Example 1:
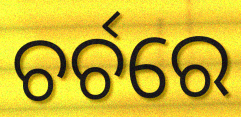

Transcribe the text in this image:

ଚର୍ଚରେ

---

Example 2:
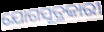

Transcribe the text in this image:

ଯୋଗସୂତ୍ରକାରୀ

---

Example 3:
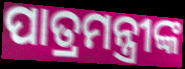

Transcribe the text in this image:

ପାତ୍ରମନ୍ତ୍ରୀଙ୍କ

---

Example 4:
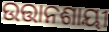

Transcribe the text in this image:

ଉତ୍ତାନଶାୟୀ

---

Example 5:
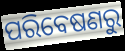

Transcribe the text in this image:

ପରିବେଷଣରୁ